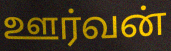
ஊர்வன்